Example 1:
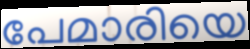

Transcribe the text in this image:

പേമാരിയെ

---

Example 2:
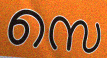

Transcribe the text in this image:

സെ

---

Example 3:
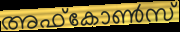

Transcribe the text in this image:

അഫ്കോൺസ്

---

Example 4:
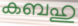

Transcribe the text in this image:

കബഹു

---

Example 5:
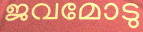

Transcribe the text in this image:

ജവമോടു